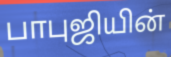
பாபுஜியின்